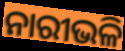
ନାରୀଭଳି